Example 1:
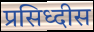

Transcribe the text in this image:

प्रसिध्दीस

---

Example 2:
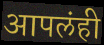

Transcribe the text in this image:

आपलंही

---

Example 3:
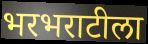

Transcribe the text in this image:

भरभराटीला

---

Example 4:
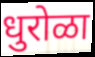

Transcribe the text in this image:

धुरोळा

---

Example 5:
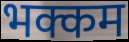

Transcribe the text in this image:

भक्‍कम